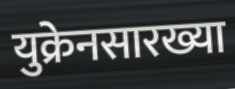
युक्रेनसारख्या